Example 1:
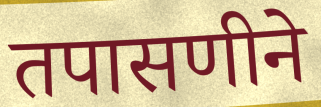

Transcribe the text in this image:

तपासणीने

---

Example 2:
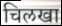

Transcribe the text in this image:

चिलखा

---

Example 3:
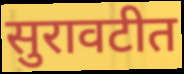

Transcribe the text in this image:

सुरावटीत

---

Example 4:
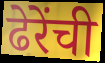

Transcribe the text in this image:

ढेरेंची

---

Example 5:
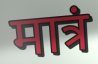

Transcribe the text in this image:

मात्रं